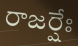
రాజర్షేః